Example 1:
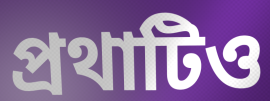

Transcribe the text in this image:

প্রথাটিও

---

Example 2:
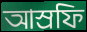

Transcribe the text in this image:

আস্রফি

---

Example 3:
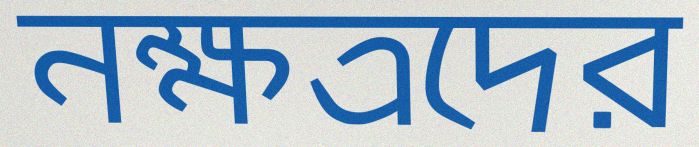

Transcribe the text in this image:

নক্ষত্রদের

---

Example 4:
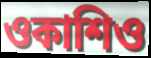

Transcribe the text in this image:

ওকাশিও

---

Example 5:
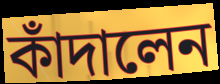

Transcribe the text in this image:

কাঁদালেন